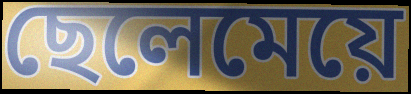
ছেলেমেয়ে